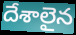
దేశాలైన